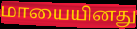
மாயையினது